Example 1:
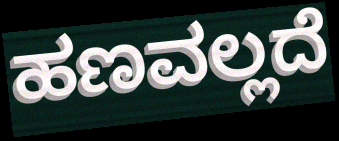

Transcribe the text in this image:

ಹಣವಲ್ಲದೆ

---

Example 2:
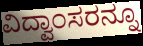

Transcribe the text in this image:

ವಿದ್ವಾಂಸರನ್ನೂ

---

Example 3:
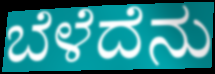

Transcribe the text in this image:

ಬೆಳೆದೆನು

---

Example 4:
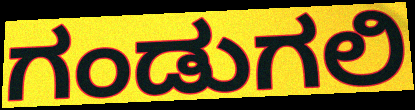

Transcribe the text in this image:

ಗಂಡುಗಲಿ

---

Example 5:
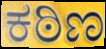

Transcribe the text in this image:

ಕಠಿಣ